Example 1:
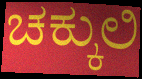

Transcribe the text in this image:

ಚಕ್ಕುಲಿ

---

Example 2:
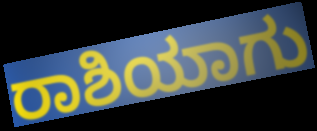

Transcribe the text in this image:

ರಾಶಿಯಾಗು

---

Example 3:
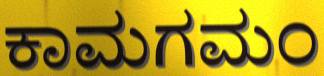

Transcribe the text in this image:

ಕಾಮಗಮಂ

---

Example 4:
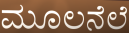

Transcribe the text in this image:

ಮೂಲನೆಲೆ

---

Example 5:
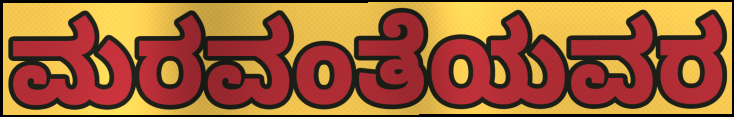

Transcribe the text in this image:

ಮರವಂತೆಯವರ